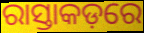
ରାସ୍ତାକଡ଼ରେ